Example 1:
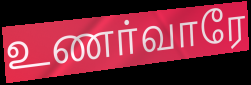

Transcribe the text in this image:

உணர்வாரே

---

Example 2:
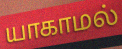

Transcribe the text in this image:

யாகாமல்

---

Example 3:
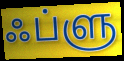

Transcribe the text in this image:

ஃப்ளு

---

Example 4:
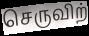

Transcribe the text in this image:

செருவிற்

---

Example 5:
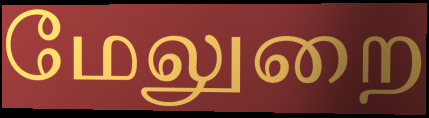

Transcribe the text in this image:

மேலுறை